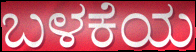
ಬಳಕೆಯ